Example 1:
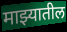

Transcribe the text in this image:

माझ्यातील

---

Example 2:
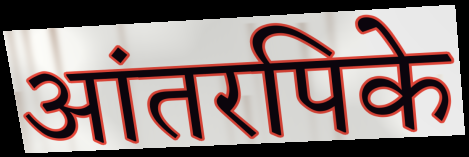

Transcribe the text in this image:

आंतरपिके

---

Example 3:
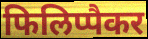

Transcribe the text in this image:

फिलिप्पैकर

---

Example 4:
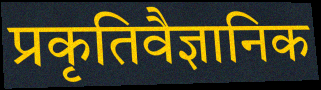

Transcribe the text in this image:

प्रकृतिवैज्ञानिक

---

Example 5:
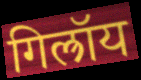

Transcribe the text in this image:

गिल्रॉय